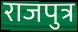
राजपुत्र